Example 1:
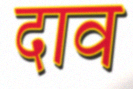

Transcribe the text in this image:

दाव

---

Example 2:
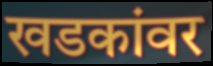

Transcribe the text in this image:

खडकांवर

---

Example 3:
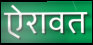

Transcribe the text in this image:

ऐरावत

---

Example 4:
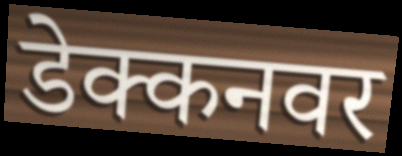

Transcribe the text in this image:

डेक्कनवर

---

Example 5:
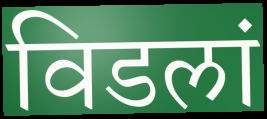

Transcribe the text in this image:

विडलां